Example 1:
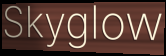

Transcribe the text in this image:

Skyglow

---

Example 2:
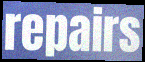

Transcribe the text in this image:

repairs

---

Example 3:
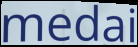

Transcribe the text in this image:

medai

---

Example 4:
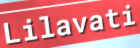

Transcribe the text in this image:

Lilavati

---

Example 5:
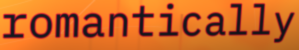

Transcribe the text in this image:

romantically